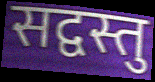
सद्वस्तु